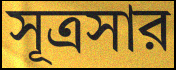
সূত্রসার